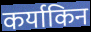
कर्याकिन